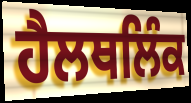
ਹੈਲਥਲਿੰਕ